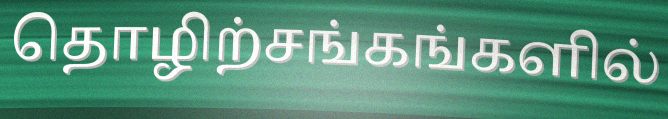
தொழிற்சங்கங்களில்